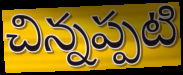
చిన్నప్పటి